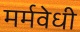
मर्मवेधी